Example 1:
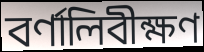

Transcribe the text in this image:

বর্ণালিবীক্ষণ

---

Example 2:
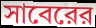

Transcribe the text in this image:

সাবেরের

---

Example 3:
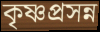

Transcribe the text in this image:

কৃষ্ণপ্রসন্ন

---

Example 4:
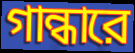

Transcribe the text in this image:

গান্ধারে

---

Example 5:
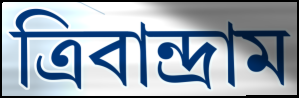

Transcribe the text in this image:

ত্রিবান্দ্রাম